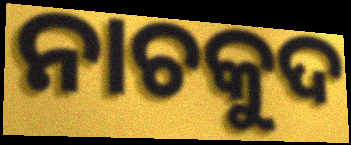
ନାଚକୁଦ